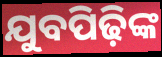
ଯୁବପିଢ଼ିଙ୍କ